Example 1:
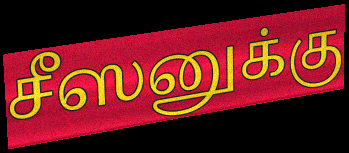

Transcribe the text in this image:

சீஸனுக்கு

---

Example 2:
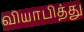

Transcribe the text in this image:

வியாபித்து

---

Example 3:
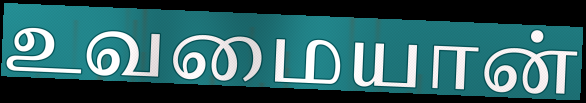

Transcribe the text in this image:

உவமையான்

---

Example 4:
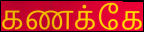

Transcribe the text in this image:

கணக்கே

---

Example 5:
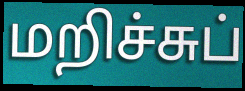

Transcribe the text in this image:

மறிச்சுப்